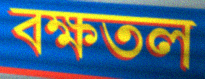
বক্ষতল